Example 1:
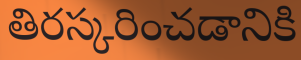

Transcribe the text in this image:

తిరస్కరించడానికి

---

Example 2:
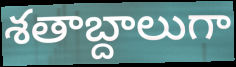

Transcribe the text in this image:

శతాబ్దాలుగా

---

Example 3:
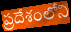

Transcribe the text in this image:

ప్రదేశంలోని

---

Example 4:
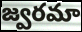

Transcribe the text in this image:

జ్వరమా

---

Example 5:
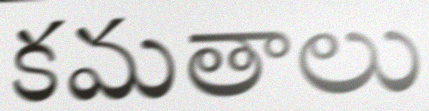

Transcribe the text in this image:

కమతాలు